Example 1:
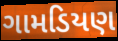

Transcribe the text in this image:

ગામડિયણ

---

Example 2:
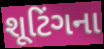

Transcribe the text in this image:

શૂટિંગના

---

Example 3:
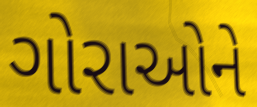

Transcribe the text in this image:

ગોરાઓને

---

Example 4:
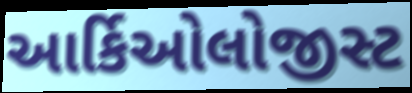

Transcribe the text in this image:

આર્કિઓલોજીસ્ટ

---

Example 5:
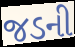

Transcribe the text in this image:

જડની